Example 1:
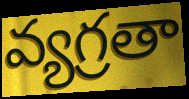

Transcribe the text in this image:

వ్యగ్రతా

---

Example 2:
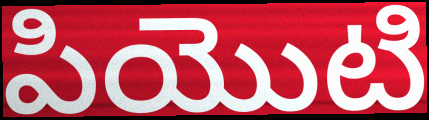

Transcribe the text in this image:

పియొటి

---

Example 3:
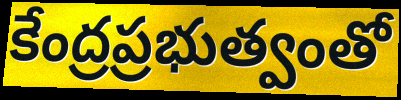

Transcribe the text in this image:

కేంద్రప్రభుత్వంతో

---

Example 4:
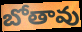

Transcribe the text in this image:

బోతావు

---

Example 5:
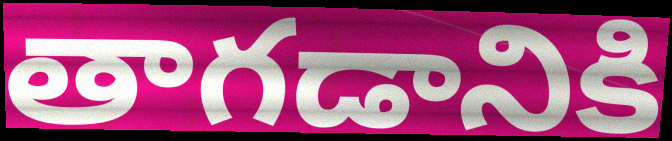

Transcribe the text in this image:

తాగడానికి